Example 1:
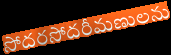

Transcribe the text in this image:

సోదరసోదరీమణులను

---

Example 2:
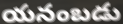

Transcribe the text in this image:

యనంబడు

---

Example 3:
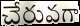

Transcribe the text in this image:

చేరువగా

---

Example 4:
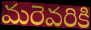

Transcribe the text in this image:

మరెవరికి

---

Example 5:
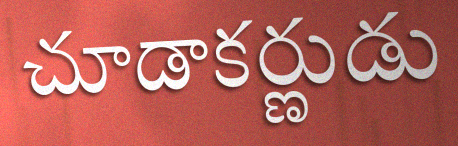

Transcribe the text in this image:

చూడాకర్ణుడు